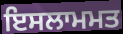
ਇਸਲਾਮਮਤ